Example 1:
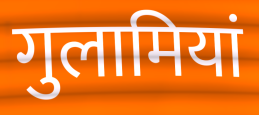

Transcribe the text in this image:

गुलामियां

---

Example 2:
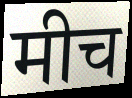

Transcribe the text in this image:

मीच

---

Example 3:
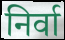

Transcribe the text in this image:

निर्वा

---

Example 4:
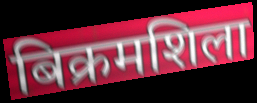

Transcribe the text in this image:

बिक्रमशिला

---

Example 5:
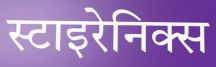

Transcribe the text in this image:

स्टाइरेनिक्स